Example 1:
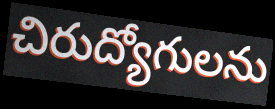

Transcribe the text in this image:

చిరుద్యోగులను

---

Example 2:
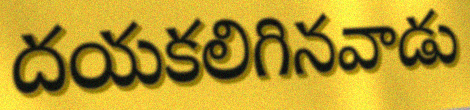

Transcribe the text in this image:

దయకలిగినవాడు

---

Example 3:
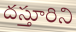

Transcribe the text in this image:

దస్తూరిని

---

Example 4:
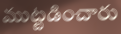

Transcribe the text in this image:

ముట్టడించారు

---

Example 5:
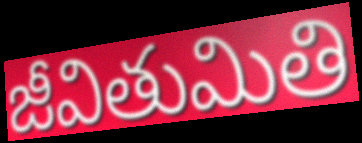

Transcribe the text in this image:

జీవితుమితి